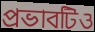
প্রভাবটিও